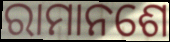
ରାମାନଶେ